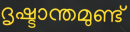
ദൃഷ്ടാന്തമുണ്ട്